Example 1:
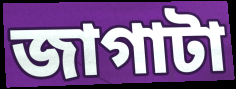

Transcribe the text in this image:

জাগাটা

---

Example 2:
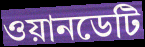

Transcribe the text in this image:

ওয়ানডেটি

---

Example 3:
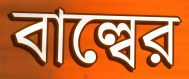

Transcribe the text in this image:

বাল্বের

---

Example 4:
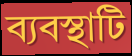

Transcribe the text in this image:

ব্যবস্থাটি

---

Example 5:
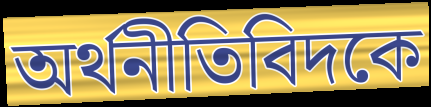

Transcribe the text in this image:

অর্থনীতিবিদকে